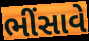
ભીંસાવે